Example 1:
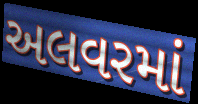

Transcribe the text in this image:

અલવરમાં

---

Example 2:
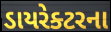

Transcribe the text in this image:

ડાયરેક્ટરના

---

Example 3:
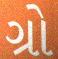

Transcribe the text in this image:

ગ્રો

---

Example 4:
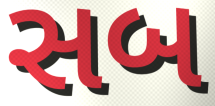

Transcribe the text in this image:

સબ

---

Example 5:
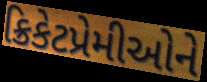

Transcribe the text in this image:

ક્રિકેટપ્રેમીઓને